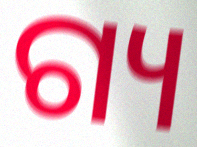
ଗ୍ୟ